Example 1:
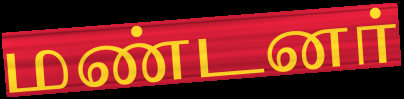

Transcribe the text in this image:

மண்டனர்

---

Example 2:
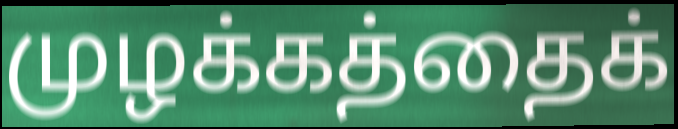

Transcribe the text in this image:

முழக்கத்தைக்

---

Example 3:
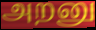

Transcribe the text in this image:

அறனு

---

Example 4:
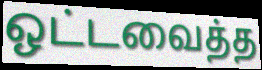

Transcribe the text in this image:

ஒட்டவைத்த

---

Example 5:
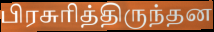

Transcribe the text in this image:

பிரசுரித்திருந்தன